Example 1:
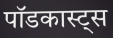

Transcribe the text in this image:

पॉडकास्ट्स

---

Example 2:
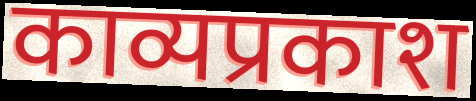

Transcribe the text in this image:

काव्यप्रकाश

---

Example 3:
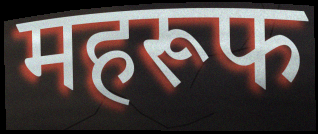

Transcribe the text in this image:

महरूफ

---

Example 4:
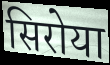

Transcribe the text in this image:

सिरोया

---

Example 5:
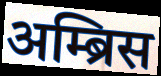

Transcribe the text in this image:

अम्ब्रिस